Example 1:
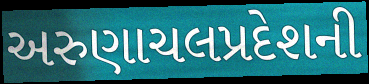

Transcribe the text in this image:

અરુણાચલપ્રદેશની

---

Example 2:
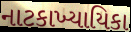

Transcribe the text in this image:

નાટકાખ્યાયિકા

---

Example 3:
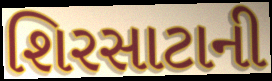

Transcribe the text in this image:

શિરસાટાની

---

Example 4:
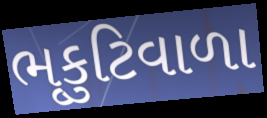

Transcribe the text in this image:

ભૃકુટિવાળા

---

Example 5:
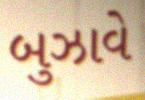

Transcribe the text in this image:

બુઝાવે